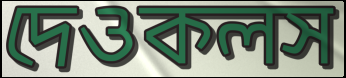
দেওকলস